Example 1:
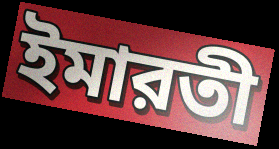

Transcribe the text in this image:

ইমারতী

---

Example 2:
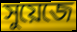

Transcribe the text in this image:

সুয়েজে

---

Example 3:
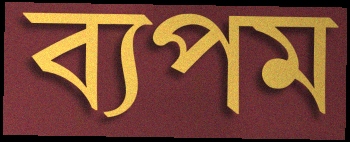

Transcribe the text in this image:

ব্যপম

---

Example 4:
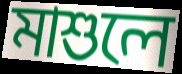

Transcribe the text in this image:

মাশুলে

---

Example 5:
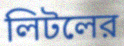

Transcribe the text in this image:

লিটলের